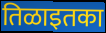
तिळाइतका